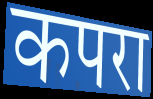
कपरा